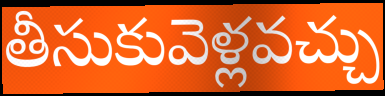
తీసుకువెళ్లవచ్చు